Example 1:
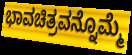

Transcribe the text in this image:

ಭಾವಚಿತ್ರವನ್ನೊಮ್ಮೆ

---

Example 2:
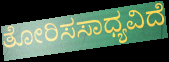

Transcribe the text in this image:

ತೋರಿಸಸಾಧ್ಯವಿದೆ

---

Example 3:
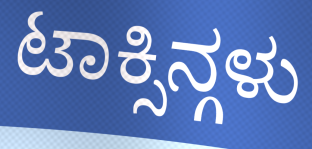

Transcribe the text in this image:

ಟಾಕ್ಸಿನ್ಗಳು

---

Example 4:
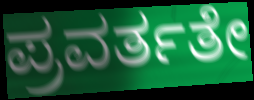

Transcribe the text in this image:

ಪ್ರವರ್ತತೇ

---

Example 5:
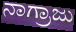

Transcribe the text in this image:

ನಾಗ್ರಾಜು